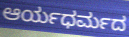
ಆರ್ಯಧರ್ಮದ